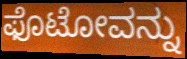
ಫೊಟೋವನ್ನು